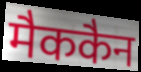
मैककैन